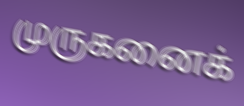
முருகனைக்